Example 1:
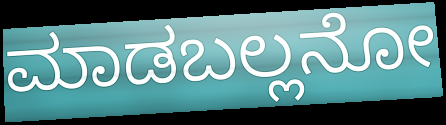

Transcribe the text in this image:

ಮಾಡಬಲ್ಲನೋ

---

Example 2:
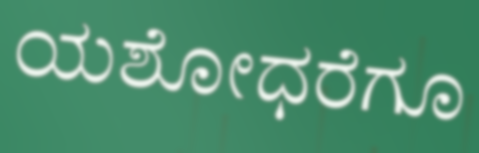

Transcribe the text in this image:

ಯಶೋಧರೆಗೂ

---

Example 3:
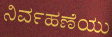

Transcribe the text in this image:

ನಿರ್ವಹಣೆಯು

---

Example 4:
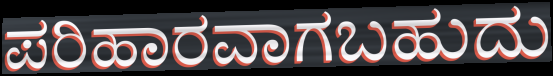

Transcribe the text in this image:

ಪರಿಹಾರವಾಗಬಹುದು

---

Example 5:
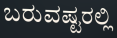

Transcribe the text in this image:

ಬರುವಷ್ಟರಲ್ಲಿ